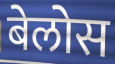
बेलोस